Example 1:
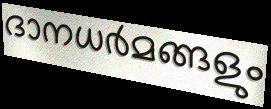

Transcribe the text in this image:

ദാനധർമങ്ങളും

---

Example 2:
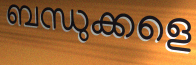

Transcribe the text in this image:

ബന്ധുക്കളെ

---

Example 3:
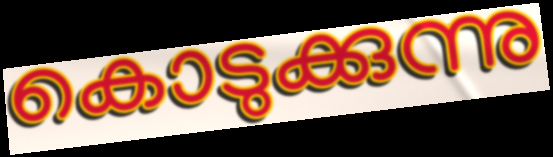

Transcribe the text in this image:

കൊടുക്കുന്നു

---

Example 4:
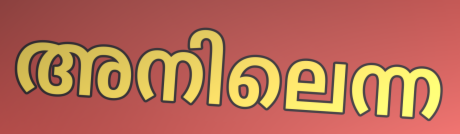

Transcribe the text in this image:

അനിലെന്ന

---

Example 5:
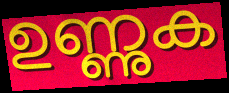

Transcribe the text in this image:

ഉണ്ണുക